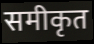
समीकृत